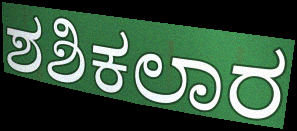
ಶಶಿಕಲಾರ